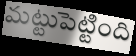
మట్టుపెట్టింది